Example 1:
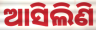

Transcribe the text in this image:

ଆସିଲିଣି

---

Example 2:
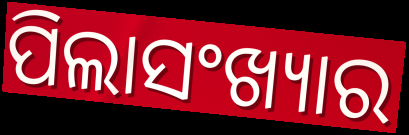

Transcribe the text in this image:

ପିଲାସଂଖ୍ୟାର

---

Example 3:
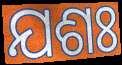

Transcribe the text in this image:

ଯଶଃ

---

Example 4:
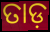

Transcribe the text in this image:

ତାଡ଼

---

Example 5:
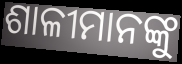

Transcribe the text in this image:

ଶାଳୀମାନଙ୍କୁ